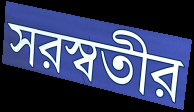
সরস্বতীর